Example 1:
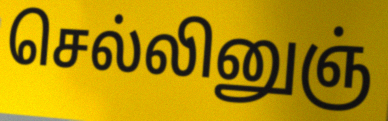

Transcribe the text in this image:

செல்லினுஞ்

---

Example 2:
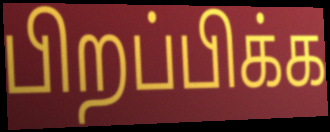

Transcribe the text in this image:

பிறப்பிக்க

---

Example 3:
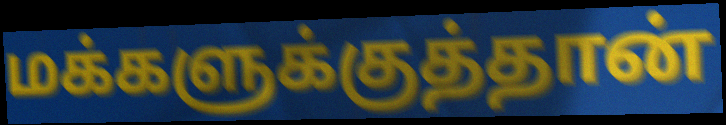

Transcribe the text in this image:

மக்களுக்குத்தான்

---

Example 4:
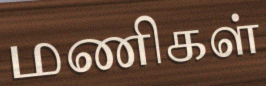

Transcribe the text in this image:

மணிகள்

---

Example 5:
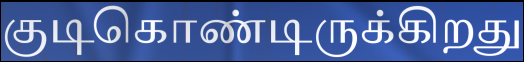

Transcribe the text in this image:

குடிகொண்டிருக்கிறது